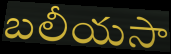
బలీయసా